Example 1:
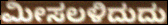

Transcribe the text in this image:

ಮೀಸಲಳಿದುದು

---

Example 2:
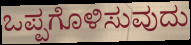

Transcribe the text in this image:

ಒಪ್ಪಗೊಳಿಸುವುದು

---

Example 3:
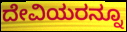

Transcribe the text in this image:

ದೇವಿಯರನ್ನೂ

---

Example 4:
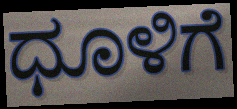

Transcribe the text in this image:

ಧೂಳಿಗೆ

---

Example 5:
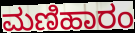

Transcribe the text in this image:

ಮಣಿಹಾರಂ